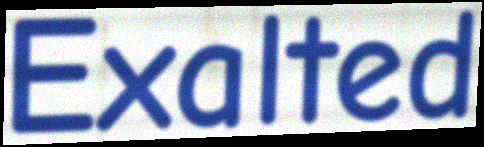
Exalted